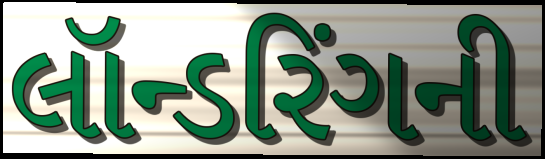
લૉન્ડરિંગની